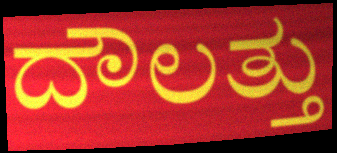
ದೌಲತ್ತು